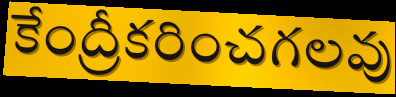
కేంద్రీకరించగలవు